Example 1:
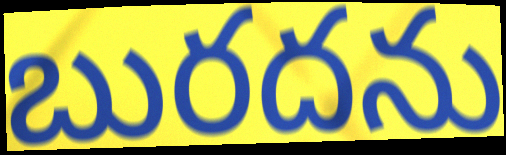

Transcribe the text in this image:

బురదను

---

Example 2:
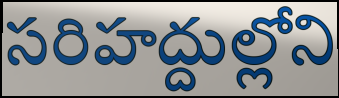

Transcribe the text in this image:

సరిహద్దుల్లోని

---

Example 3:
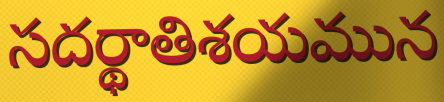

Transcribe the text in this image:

సదర్థాతిశయమున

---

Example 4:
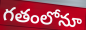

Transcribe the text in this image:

గతంలోనూ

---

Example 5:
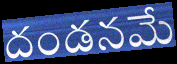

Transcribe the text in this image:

దండనమే